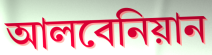
আলবেনিয়ান